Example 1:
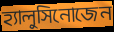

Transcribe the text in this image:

হ্যালুসিনোজেন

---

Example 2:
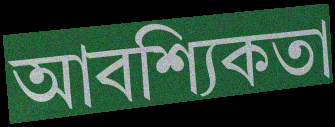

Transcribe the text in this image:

আবশ্যিকতা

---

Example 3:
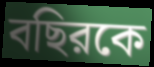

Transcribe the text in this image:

বছিরকে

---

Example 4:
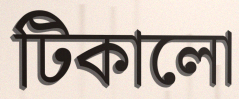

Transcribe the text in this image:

টিকালো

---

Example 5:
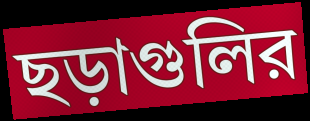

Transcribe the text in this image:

ছড়াগুলির